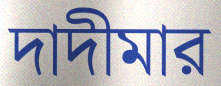
দাদীমার